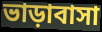
ভাড়াবাসা